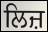
ਲਿਜ਼